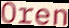
Oren